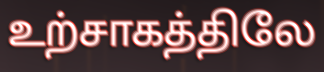
உற்சாகத்திலே